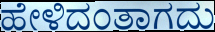
ಹೇಳಿದಂತಾಗದು